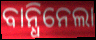
ବାନ୍ଧିନେଲା